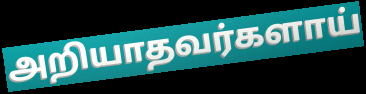
அறியாதவர்களாய்